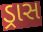
ડ્રાસ